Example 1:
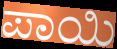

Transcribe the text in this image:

ಪಾಯಿ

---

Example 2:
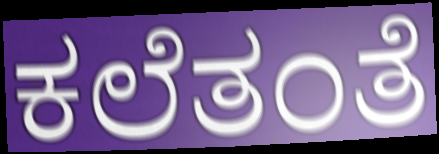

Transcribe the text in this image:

ಕಲೆತಂತೆ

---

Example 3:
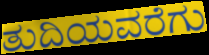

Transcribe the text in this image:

ತುದಿಯವರೆಗು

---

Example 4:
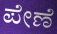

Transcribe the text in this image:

ಪೇಣೆ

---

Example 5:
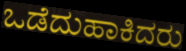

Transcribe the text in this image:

ಒಡೆದುಹಾಕಿದರು